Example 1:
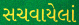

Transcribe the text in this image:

સચવાયેલાં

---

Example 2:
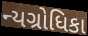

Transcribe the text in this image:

ન્યગ્રોધિકા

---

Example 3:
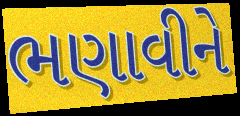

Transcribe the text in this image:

ભણાવીને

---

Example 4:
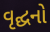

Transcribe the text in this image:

વૃદ્ઘનો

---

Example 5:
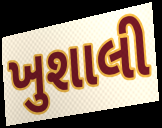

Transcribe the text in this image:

ખુશાલી